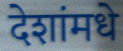
देशांमधे